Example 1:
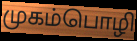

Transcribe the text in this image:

முகம்பொழி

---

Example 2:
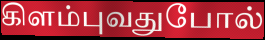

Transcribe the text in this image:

கிளம்புவதுபோல்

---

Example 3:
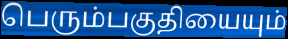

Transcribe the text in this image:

பெரும்பகுதியையும்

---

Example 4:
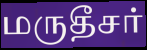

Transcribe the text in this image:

மருதீசர்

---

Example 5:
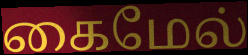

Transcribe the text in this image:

கைமேல்